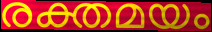
രക്തമയം